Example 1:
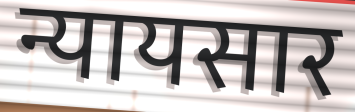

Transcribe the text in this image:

न्यायसार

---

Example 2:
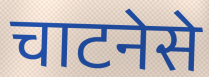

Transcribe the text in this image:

चाटनेसे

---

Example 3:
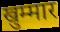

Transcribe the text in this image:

खुम्मार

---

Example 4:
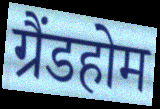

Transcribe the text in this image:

ग्रैंडहोम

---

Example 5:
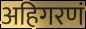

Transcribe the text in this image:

अहिगरणं